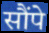
सौंपे